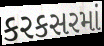
કરકસરમાં